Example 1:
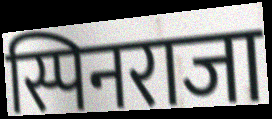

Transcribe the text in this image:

स्पिनराजा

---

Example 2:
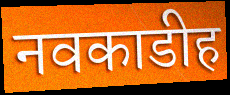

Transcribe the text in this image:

नवकाडीह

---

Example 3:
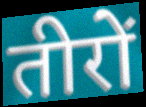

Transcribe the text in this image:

तीरों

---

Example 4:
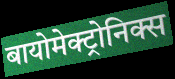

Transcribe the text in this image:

बायोमेक्ट्रोनिक्स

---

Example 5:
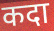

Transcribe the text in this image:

कदा